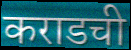
कराडची